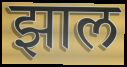
झाल